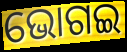
ଭୋଗଇ